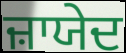
ਜ਼ਾਯੇਦ